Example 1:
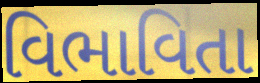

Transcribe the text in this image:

વિભાવિતા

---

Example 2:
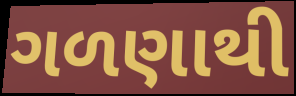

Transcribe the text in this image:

ગળણાથી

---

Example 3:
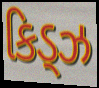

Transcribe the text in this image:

કિડ્ઝ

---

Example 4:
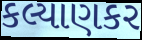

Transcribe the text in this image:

કલ્યાણકર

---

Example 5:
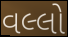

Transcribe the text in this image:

વલ્લો